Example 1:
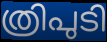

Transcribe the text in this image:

ത്രിപുടി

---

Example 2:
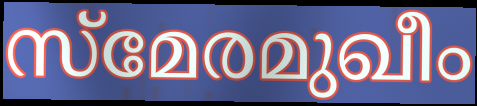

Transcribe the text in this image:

സ്മേരമുഖീം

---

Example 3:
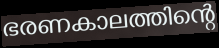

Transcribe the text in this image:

ഭരണകാലത്തിന്റെ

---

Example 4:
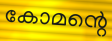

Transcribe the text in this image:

കോമന്റെ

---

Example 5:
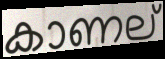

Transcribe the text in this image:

കാണല്